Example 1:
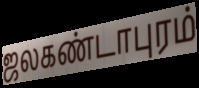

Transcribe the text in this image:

ஜலகண்டாபுரம்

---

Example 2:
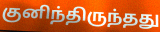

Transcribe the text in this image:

குனிந்திருந்தது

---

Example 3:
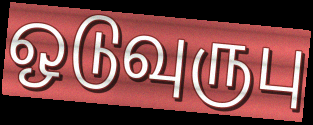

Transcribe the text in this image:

ஒடுவுருபு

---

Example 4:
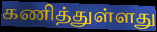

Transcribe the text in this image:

கணித்துள்ளது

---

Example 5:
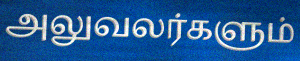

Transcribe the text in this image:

அலுவலர்களும்